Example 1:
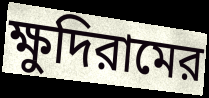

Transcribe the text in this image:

ক্ষুদিরামের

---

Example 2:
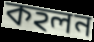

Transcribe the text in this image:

কহলন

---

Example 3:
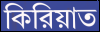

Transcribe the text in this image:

কিরিয়াত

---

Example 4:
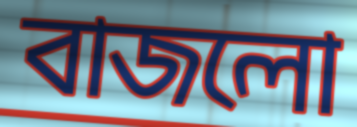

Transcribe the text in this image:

বাজলো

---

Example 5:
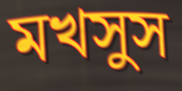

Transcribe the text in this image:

মখসুস